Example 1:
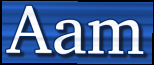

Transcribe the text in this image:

Aam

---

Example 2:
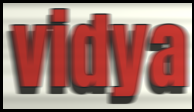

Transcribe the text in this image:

vidya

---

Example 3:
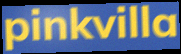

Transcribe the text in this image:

pinkvilla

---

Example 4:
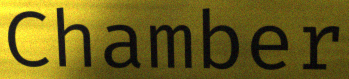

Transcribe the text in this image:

Chamber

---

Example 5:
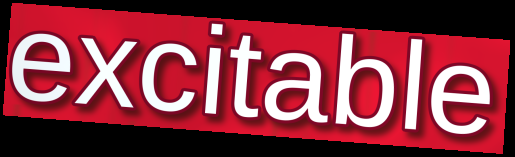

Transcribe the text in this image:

excitable